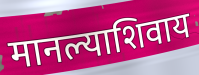
मानल्याशिवाय